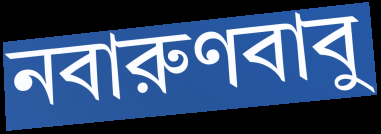
নবারুণবাবু